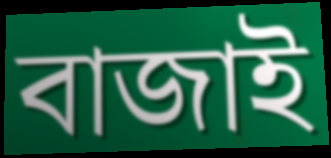
বাজাই